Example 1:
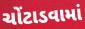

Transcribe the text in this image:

ચોંટાડવામાં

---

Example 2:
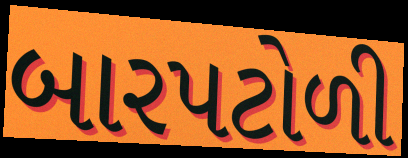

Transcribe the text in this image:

બારપટોળી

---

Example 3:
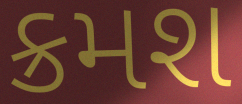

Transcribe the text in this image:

ક્રમશ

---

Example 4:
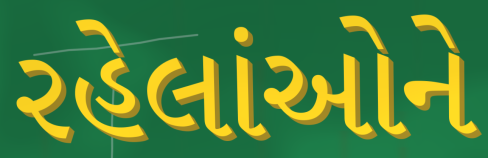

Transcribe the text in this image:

રહેલાંઓને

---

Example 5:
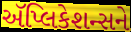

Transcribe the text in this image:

ઍપ્લિકેશન્સને